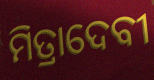
ମିତ୍ରାଦେବୀ